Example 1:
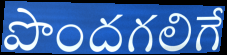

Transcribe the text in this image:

పొందగలిగే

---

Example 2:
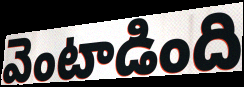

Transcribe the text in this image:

వెంటాడింది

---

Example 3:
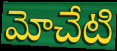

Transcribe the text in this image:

మోచేటి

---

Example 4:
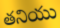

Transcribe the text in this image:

తనియు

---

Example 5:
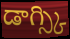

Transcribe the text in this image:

డాగ్స్కి